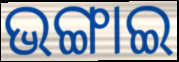
ଭଙ୍ଗାଇ